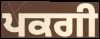
ਪਕਗੀ